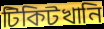
টিকিটখানি